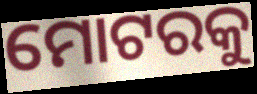
ମୋଟରକୁ